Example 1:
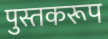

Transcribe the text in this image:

पुस्तकरूप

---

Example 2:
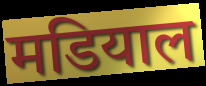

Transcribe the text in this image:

मडियाल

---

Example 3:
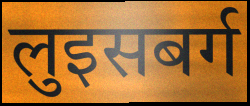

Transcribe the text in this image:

लुइसबर्ग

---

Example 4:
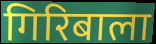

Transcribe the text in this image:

गिरिबाला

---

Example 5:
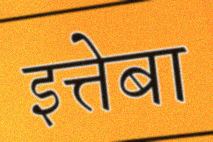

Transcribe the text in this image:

इत्तेबा